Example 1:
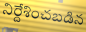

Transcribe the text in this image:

నిర్దేశించబడిన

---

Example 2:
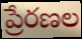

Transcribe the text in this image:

ప్రేరణల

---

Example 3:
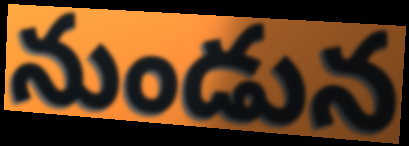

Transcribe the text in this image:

నుండున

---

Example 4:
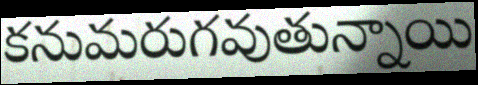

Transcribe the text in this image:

కనుమరుగవుతున్నాయి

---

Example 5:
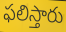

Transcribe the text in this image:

ఫలిస్తారు